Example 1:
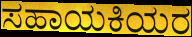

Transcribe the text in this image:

ಸಹಾಯಕಿಯರ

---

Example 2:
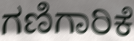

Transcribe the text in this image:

ಗಣಿಗಾರಿಕೆ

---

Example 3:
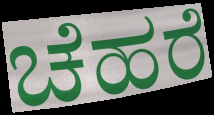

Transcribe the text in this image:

ಚೆಹರೆ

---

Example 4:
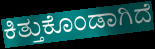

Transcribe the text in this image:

ಕಿತ್ತುಕೊಂಡಾಗಿದೆ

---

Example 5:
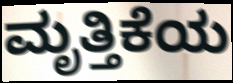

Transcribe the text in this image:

ಮೃತ್ತಿಕೆಯ